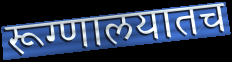
रूग्णालयातच